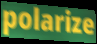
polarize